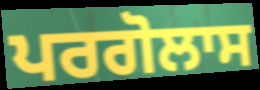
ਪਰਗੋਲਾਸ